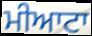
ਮੀਆਟਾ